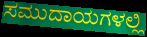
ಸಮುದಾಯಗಳಲ್ಲಿ